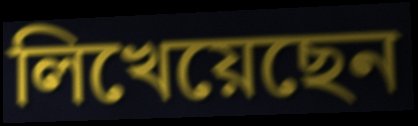
লিখেয়েছেন